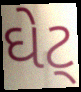
ઘેટ્